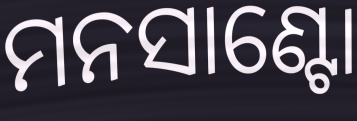
ମନସାଣ୍ଟୋ